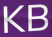
KB